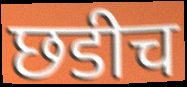
छडीच